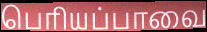
பெரியப்பாவை